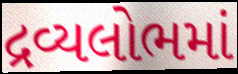
દ્રવ્યલોભમાં